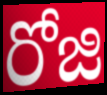
రోజి